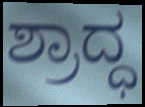
ಶ್ರಾದ್ಧ